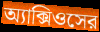
অ্যাক্সিওসের